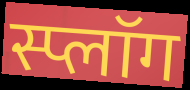
स्प्लॉग